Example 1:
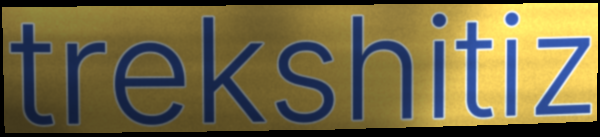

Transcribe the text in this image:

trekshitiz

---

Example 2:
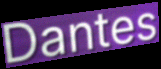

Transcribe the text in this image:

Dantes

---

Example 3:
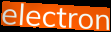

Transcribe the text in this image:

electron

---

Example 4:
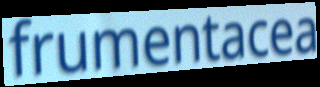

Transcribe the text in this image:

frumentacea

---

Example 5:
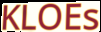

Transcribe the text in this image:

KLOEs